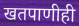
खतपाणीही